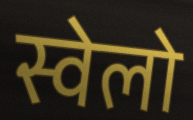
स्वेलो